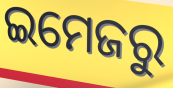
ଇମେଜରୁ